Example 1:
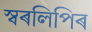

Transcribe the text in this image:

স্বৰলিপিৰ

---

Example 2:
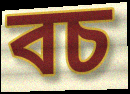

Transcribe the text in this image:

বচ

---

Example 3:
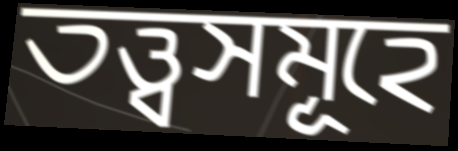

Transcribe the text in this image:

তত্ত্বসমূহে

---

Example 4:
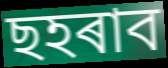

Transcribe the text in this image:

ছহৰাব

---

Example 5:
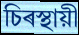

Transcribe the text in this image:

চিৰস্থায়ী